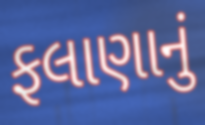
ફલાણાનું